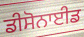
ਡੀਸੋਨਾਈਡ